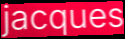
jacques